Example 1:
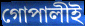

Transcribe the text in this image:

গোপালীই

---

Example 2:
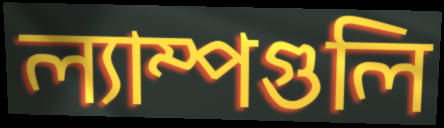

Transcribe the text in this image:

ল্যাম্পগুলি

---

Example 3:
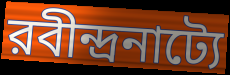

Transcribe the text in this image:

রবীন্দ্রনাট্যে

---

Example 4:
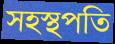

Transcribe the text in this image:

সহস্থপতি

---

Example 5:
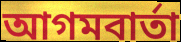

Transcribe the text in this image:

আগমবার্তা